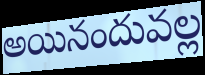
అయినందువల్ల